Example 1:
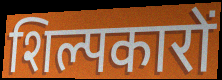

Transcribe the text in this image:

शिल्पकारों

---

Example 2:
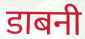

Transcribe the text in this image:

डाबनी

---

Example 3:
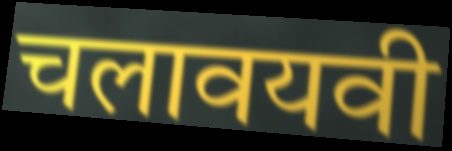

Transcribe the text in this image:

चलावयवी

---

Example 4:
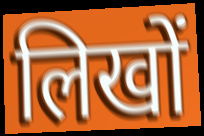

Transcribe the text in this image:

लिखों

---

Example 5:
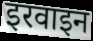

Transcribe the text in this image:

इरवाइन